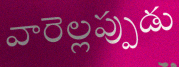
వారెల్లప్పుడు